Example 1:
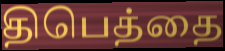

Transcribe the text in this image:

திபெத்தை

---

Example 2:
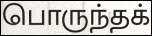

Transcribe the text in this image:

பொருந்தக்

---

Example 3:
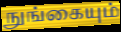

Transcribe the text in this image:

நுங்கையும்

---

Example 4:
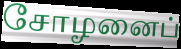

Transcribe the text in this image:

சோழனைப்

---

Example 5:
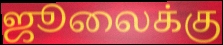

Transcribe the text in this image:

ஜூலைக்கு